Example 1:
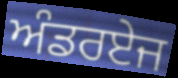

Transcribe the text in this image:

ਅੰਡਰਏਜ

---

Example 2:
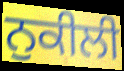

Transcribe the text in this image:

ਨੁਕੀਲੀ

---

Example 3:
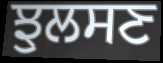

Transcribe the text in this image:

ਝੁਲਸਣ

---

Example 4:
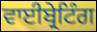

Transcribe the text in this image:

ਵਾਈਬ੍ਰੇਟਿੰਗ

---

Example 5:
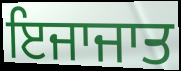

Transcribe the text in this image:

ਇਜਾਜਾਤ